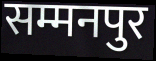
सम्मनपुर